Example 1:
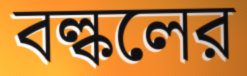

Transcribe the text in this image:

বল্কলের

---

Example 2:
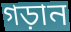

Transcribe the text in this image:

গড়ান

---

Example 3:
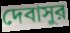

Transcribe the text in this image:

দেবাসুর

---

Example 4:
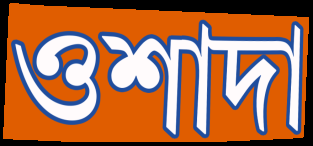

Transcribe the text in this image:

ওশাদা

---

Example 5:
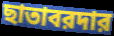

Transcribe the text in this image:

ছাতাবরদার